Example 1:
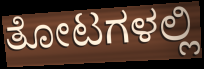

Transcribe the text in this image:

ತೋಟಗಳಲ್ಲಿ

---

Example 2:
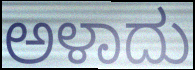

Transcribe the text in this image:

ಅಳಾದು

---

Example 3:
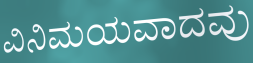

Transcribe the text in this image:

ವಿನಿಮಯವಾದವು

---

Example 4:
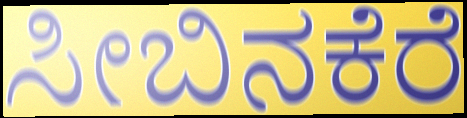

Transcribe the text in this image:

ಸೀಬಿನಕೆರೆ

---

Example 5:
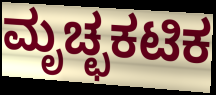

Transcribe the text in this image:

ಮೃಚ್ಛಕಟಿಕ